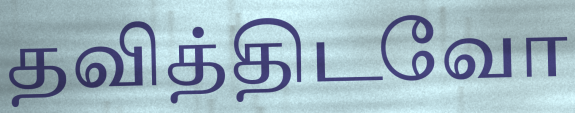
தவித்திடவோ